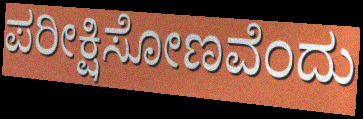
ಪರೀಕ್ಷಿಸೋಣವೆಂದು